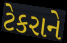
ટેકરાને